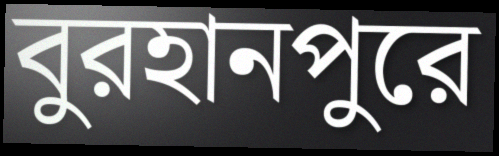
বুরহানপুরে